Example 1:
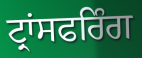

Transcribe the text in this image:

ਟ੍ਰਾਂਸਫਰਿੰਗ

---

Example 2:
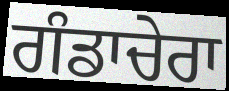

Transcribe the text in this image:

ਗੰਡਾਚੇਰਾ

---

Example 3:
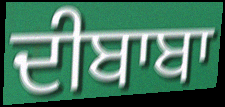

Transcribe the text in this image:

ਦੀਬਾਬਾ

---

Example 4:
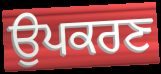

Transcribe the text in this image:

ਉਪਕਰਣ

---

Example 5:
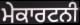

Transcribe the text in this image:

ਮੇਕਾਰਟਨੀ